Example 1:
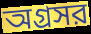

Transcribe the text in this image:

অগ্রসর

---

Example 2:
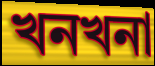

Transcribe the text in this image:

খনখনা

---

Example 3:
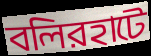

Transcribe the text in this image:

বলিরহাটে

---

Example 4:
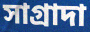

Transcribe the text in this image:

সাগ্রাদা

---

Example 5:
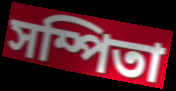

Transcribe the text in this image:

সম্পিতা